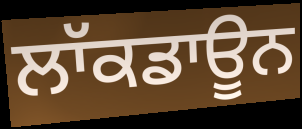
ਲਾੱਕਡਾਊਨ